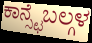
ಕಾನ್ಸ್ಟೆಬಲ್ಗಳ